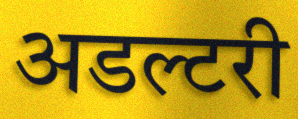
अडल्टरी